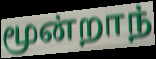
மூன்றாந்